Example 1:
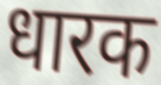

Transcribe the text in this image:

धारक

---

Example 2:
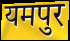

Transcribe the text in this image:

यमपुर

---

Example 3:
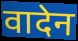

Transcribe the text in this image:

वादेन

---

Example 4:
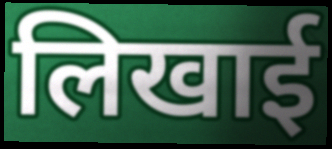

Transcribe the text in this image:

लिखाई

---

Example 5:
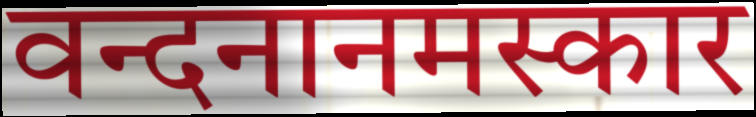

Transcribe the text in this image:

वन्दनानमस्कार